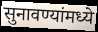
सुनावण्यांमध्ये